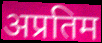
अप्रतिम